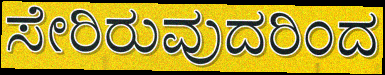
ಸೇರಿರುವುದರಿಂದ